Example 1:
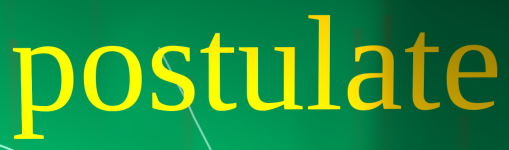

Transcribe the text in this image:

postulate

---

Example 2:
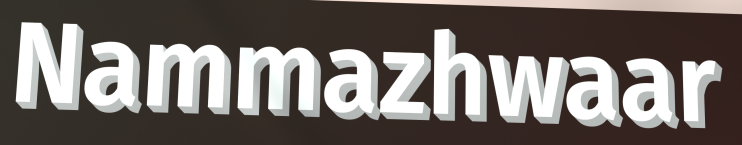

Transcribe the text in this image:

Nammazhwaar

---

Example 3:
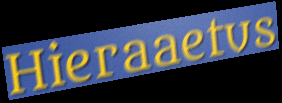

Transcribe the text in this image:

Hieraaetus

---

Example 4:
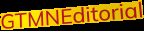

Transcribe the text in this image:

GTMNEditorial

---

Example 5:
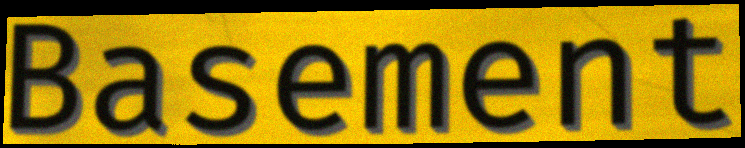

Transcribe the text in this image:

Basement